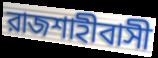
রাজশাহীবাসী